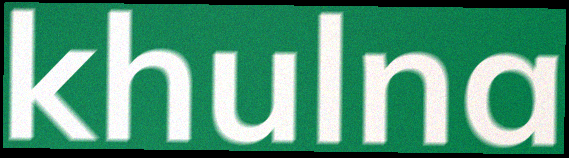
khulna